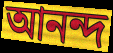
আনন্দ